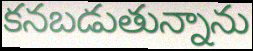
కనబడుతున్నాను